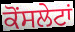
ਕੋਂਸਲੇਟਾਂ